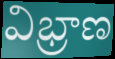
విభ్రాణ